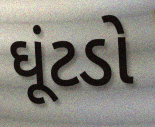
ઘૂંટડો